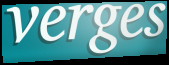
verges